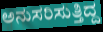
ಅನುಸರಿಸುತ್ತಿದ್ದ